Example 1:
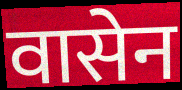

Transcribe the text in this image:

वासेन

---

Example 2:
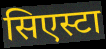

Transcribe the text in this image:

सिएस्टा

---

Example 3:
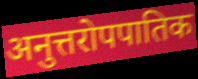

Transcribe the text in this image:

अनुत्तरोपपातिक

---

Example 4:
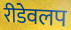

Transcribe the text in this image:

रीडेवलप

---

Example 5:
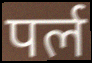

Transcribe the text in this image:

पर्ल